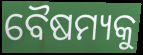
ବୈଷମ୍ୟକୁ